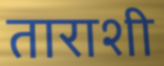
ताराशी